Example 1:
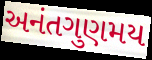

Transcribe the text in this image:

અનંતગુણમય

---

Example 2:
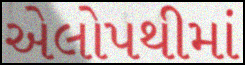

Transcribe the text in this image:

એલોપથીમાં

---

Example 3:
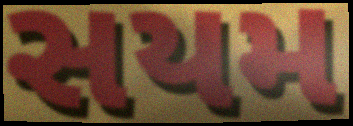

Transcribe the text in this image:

સયમ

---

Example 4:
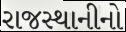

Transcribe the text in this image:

રાજસ્થાનીનો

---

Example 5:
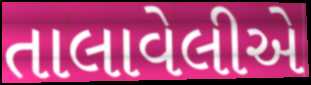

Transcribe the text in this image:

તાલાવેલીએ